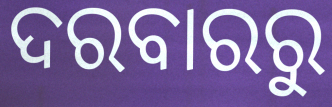
ଦରବାରରୁ